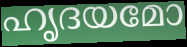
ഹൃദയമോ